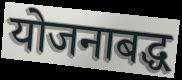
योजनाबद्ध